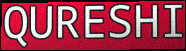
QURESHI